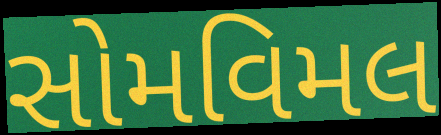
સોમવિમલ